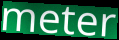
meter